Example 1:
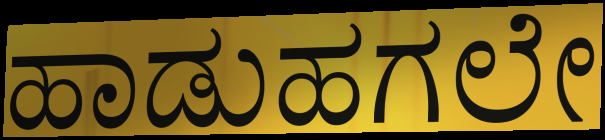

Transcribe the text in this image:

ಹಾಡುಹಗಲೇ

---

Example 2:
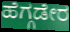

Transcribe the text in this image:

ಹೆಗ್ಗಡೇರ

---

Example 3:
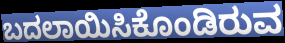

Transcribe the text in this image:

ಬದಲಾಯಿಸಿಕೊಂಡಿರುವ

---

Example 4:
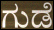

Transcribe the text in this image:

ಗುಡೆ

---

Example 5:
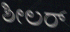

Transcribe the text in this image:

ಶೀಲರ್